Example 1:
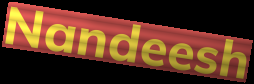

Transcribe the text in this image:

Nandeesh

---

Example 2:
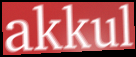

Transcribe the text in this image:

akkul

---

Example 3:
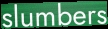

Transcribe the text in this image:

slumbers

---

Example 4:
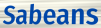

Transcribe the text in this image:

Sabeans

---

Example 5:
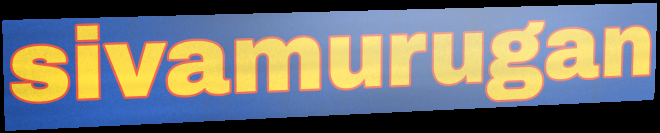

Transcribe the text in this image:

sivamurugan